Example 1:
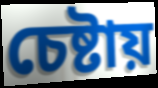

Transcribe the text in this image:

চেষ্টায়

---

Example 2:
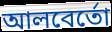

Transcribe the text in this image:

আলবের্তো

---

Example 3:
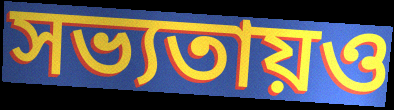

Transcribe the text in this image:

সভ্যতায়ও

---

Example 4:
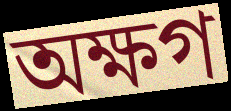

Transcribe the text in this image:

অক্ষগ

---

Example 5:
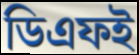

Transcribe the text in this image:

ডিএফই